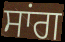
ਸਾਂਗ